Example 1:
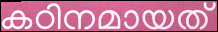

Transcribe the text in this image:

കഠിനമായത്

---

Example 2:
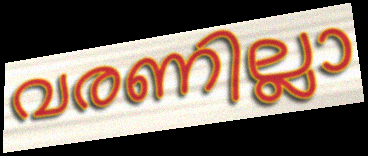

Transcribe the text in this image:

വരണില്ലാ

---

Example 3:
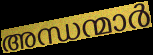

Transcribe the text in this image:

അന്ധന്മാർ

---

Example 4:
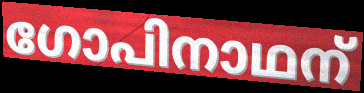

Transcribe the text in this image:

ഗോപിനാഥന്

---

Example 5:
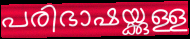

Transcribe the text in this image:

പരിഭാഷയ്ക്കുള്ള